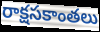
రాక్షసకాంతలు